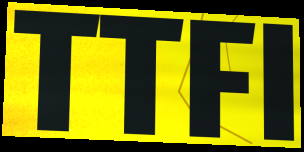
TTFI